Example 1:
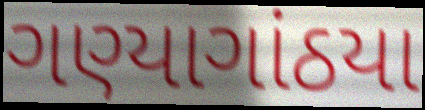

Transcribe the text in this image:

ગણ્યાગાંઠયા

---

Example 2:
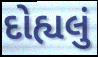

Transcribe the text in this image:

દોહ્યલું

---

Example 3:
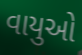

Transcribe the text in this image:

વાયુઓ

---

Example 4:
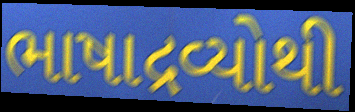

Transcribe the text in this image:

ભાષાદ્રવ્યોથી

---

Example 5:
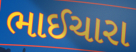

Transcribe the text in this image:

ભાઈચારા